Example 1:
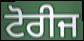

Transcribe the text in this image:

ਟੋਰੀਜ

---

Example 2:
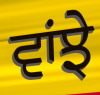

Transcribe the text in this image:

ਵਾਂਝੇ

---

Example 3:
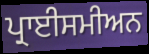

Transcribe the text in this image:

ਪ੍ਰਾਈਸਮੀਅਨ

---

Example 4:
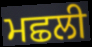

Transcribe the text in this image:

ਮਛਲੀ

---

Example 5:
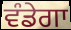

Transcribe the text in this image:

ਵੰਡੇਗਾ